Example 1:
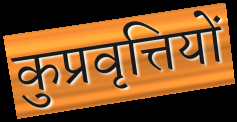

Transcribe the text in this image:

कुप्रवृत्तियों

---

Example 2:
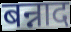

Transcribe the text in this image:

बन्नाद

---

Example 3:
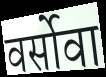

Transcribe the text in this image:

वर्सोवा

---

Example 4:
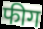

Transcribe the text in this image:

फीग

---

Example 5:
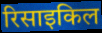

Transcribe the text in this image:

रिसाइकिल